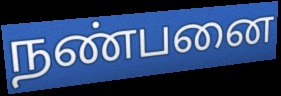
நண்பனை